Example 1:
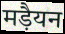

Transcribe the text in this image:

मड़ैयन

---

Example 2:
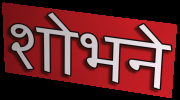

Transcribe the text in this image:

शोभने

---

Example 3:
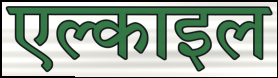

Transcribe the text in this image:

एल्काइल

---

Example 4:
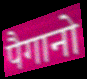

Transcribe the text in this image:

पैगानो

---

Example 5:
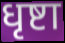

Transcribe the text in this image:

धृष्टा